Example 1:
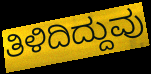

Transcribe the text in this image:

ತಿಳಿದಿದ್ದುವು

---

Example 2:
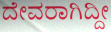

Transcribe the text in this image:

ದೇವರಾಗಿದ್ದೀ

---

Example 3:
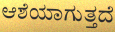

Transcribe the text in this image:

ಆಶೆಯಾಗುತ್ತದೆ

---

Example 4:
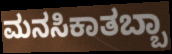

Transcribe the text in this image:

ಮನಸಿಕಾತಬ್ಬಾ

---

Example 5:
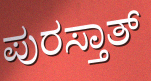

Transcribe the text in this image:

ಪುರಸ್ತಾತ್